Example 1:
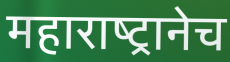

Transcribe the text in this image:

महाराष्ट्रानेच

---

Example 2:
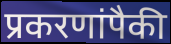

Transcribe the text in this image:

प्रकरणांपैकी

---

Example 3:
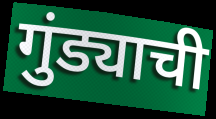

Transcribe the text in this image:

गुंड्याची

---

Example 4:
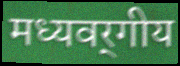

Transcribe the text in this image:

मध्यवर्गीय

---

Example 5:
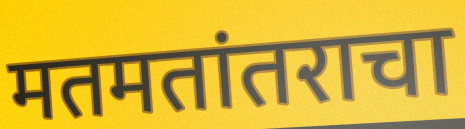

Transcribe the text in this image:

मतमतांतराचा